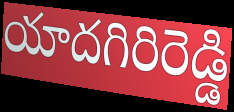
యాదగిరిరెడ్డి